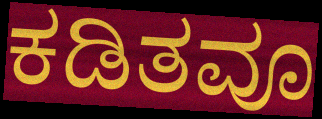
ಕಡಿತವೂ